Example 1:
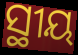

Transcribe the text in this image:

ସ୍ଥୀୟ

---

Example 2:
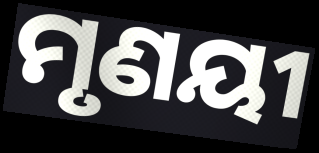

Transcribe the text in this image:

ମୃଣୟୀ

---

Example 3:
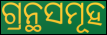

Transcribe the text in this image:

ଗ୍ରନ୍ଥସମୂହ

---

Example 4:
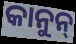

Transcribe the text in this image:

କାନୁନ୍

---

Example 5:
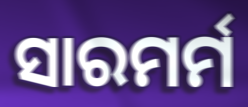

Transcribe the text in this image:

ସାରମର୍ମ